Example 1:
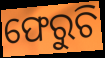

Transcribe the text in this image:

ଫେରୁଚି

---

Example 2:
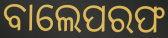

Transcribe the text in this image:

ବାଲେପରଫ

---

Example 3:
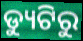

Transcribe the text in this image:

ଡ୍ୟୁଟିରୁ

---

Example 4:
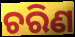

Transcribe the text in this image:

ଚରିଣ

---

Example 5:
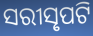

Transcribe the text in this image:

ସରୀସୃପଟି